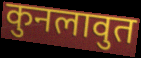
कुनलावुत